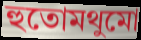
হুতোমথুমো